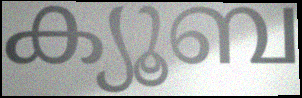
ക്യൂബ